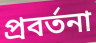
প্রবর্তনা